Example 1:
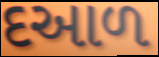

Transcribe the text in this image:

દઆળ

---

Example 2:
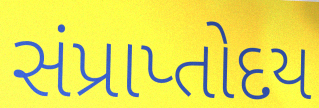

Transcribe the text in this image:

સંપ્રાપ્તોદય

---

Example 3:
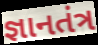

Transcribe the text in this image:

જ્ઞાનતંત્ર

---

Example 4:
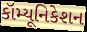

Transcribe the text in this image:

કૉમ્યૂનિકેશન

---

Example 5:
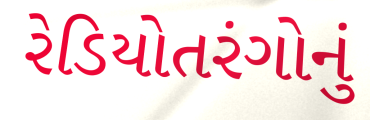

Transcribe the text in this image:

રેડિયોતરંગોનું